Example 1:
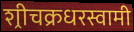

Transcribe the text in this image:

श्रीचक्रधरस्वामी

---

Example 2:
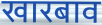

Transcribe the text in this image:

खारबाव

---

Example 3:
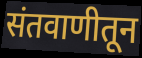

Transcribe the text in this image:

संतवाणीतून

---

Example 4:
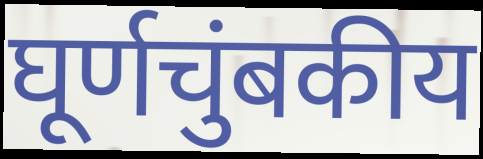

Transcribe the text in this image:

घूर्णचुंबकीय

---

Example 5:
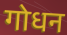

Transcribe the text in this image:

गोधन